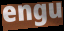
engu